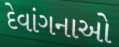
દેવાંગનાઓ